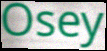
Osey